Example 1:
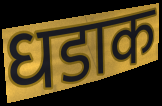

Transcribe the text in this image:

धडाक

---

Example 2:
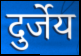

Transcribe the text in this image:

दुर्जेय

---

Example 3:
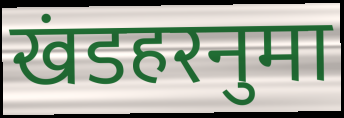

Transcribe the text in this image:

खंडहरनुमा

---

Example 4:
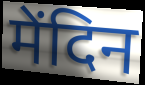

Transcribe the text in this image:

मेंदिन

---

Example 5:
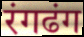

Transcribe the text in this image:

रंगढंग